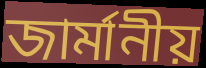
জাৰ্মানীয়